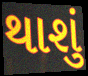
થાશું